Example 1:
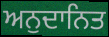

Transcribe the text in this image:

ਅਨੁਦਾਨਿਤ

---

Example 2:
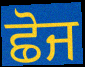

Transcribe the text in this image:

ਛੋਜ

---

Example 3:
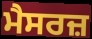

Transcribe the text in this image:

ਮੈਸਰਜ਼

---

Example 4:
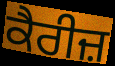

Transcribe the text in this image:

ਕੈਰੀਜ਼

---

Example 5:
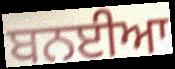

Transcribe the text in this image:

ਬਨਈਆ